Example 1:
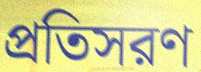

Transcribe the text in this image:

প্রতিসরণ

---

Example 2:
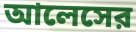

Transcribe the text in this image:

আলেসের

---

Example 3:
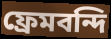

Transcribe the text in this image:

ফ্রেমবন্দি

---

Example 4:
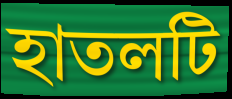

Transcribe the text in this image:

হাতলটি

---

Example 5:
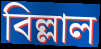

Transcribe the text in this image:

বিল্লাল